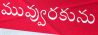
మువ్వురకును